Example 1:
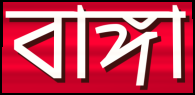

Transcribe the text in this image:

বাঙ্গা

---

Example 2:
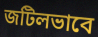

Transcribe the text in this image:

জটিলভাবে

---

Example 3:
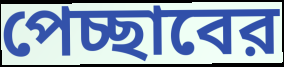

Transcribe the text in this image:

পেচ্ছাবের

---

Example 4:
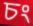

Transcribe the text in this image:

চং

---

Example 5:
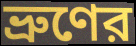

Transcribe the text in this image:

ভ্রুণের